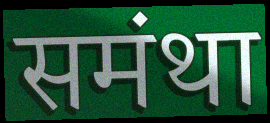
समंथा